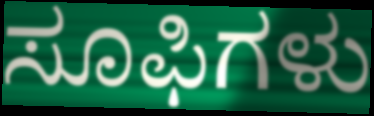
ಸೂಫಿಗಳು